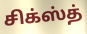
சிக்ஸ்த்